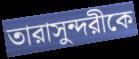
তারাসুন্দরীকে